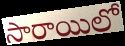
సారాయిలో